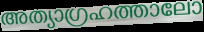
അത്യാഗ്രഹത്താലോ